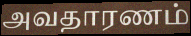
அவதாரணம்